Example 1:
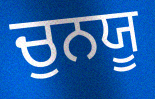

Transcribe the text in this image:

ਚੁਨਯੂ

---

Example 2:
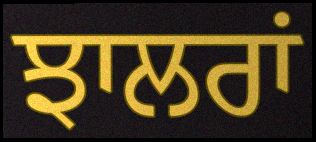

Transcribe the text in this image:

ਝਾਲਰਾਂ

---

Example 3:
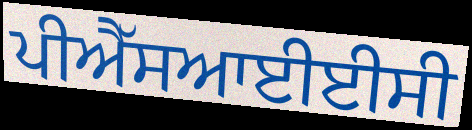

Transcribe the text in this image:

ਪੀਐੱਸਆਈਈਸੀ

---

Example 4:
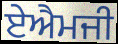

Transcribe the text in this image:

ਏਐਮਜੀ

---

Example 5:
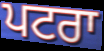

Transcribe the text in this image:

ਪਟਰਾ